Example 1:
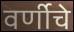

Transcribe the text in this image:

वर्णीचे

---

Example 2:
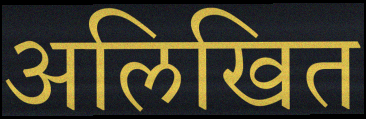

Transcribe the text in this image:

अलिखित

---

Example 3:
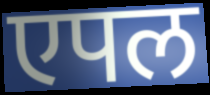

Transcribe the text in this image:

एपल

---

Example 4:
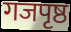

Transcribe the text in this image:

गजपृष्ठ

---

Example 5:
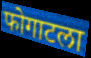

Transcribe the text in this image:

फोगाटला